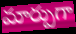
మార్పుగా